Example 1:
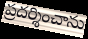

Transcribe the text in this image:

ప్రదర్శించాను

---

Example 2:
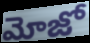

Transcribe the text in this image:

మోజో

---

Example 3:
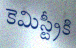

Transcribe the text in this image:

కెమిస్ట్రీకి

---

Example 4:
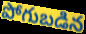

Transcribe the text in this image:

పోగుబడిన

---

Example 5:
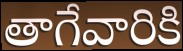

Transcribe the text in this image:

తాగేవారికి